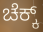
ಚೆಕ್ಕ್